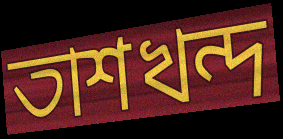
তাশখন্দ